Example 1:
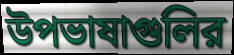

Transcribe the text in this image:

উপভাষাগুলির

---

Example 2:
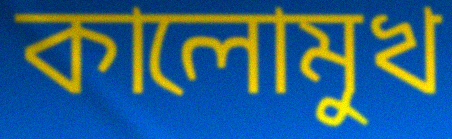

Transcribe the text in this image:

কালোমুখ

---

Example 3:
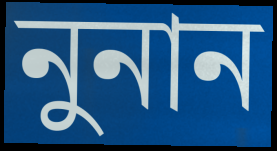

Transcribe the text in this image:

নুনান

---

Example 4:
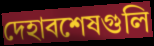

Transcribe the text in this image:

দেহাবশেষগুলি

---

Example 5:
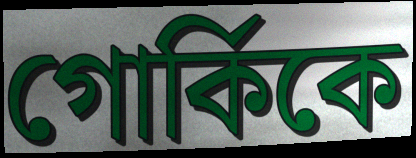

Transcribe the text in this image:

গোর্কিকে